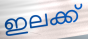
ഇലക്ക്